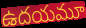
ఉదయమూ